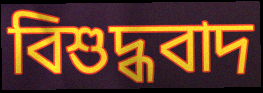
বিশুদ্ধবাদ